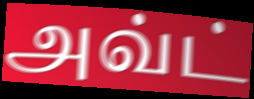
அவ்ட்